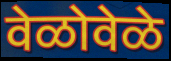
वेळोवेळे